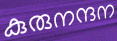
കുരുനന്ദന